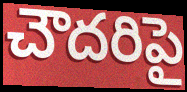
చౌదరిపై